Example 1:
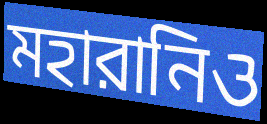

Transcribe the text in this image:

মহারানিও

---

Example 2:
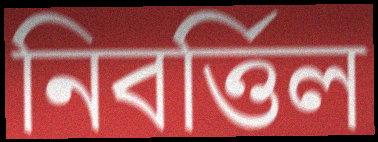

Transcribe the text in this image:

নিবর্ত্তিল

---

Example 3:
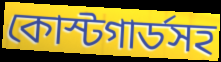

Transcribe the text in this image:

কোস্টগার্ডসহ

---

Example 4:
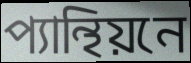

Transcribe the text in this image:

প্যান্থিয়নে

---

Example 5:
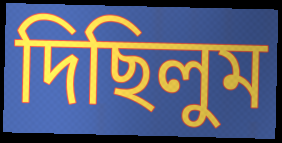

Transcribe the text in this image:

দিছিলুম